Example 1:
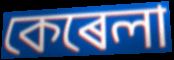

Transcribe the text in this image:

কেৰেলা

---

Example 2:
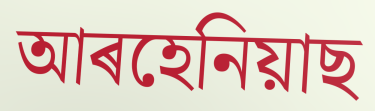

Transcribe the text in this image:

আৰহেনিয়াছ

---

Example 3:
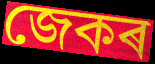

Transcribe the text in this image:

জেকৰ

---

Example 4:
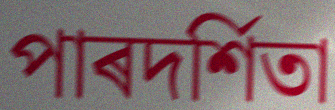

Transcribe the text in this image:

পাৰদৰ্শিতা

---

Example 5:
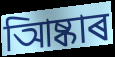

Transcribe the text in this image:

আিষ্কাৰ